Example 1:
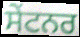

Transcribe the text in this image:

ਸੇਂਟਨਰ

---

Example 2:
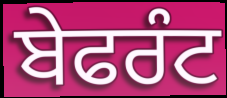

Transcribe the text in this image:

ਬੇਫਰੰਟ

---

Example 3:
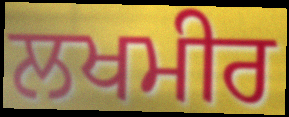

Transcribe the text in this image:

ਲਖਮੀਰ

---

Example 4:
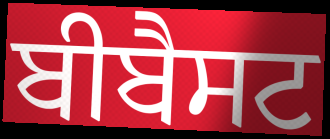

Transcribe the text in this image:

ਬੀਬੈਸਟ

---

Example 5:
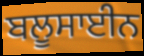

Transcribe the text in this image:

ਬਲੂਸਾਈਨ